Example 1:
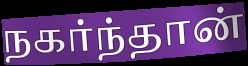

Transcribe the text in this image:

நகர்ந்தான்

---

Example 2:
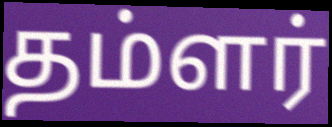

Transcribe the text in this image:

தம்ளர்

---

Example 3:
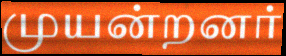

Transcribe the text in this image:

முயன்றனர்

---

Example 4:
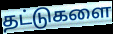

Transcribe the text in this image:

தட்டுகளை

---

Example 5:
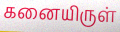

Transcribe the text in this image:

கனையிருள்